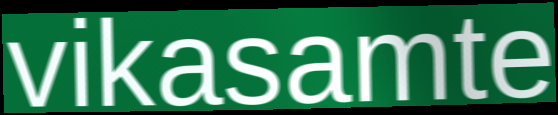
vikasamte